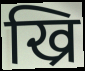
ख्रि